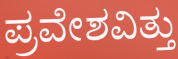
ಪ್ರವೇಶವಿತ್ತು